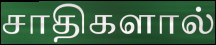
சாதிகளால்